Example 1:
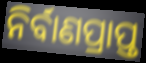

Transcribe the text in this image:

ନିର୍ବାଣପ୍ରାପ୍ତ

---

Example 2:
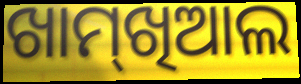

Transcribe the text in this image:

ଖାମ୍‌ଖିଆଲ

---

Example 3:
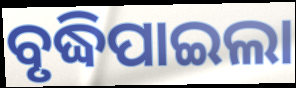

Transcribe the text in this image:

ବୃଦ୍ଧିପାଇଲା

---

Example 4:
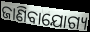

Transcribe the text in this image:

ଜାଣିବାଯୋଗ୍ୟ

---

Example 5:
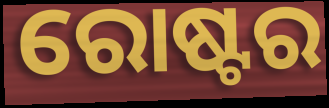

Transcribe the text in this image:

ରୋଷ୍ଟର